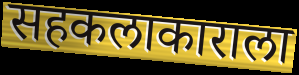
सहकलाकाराला